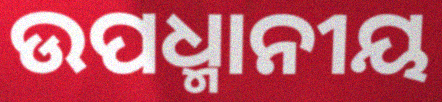
ଉପଧ୍ମାନୀୟ